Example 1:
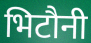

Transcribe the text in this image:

भिटौनी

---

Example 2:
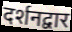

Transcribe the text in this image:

दर्शनद्वार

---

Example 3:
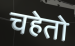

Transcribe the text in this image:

चहेतो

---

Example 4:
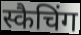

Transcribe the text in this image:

स्कैचिंग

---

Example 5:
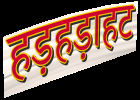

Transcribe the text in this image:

हड़हड़ाहट